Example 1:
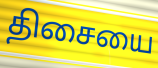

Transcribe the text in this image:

திசையை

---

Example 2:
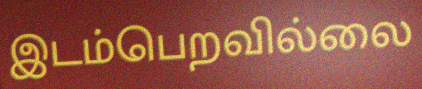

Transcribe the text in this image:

இடம்பெறவில்லை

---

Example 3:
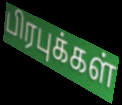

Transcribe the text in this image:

பிரபுக்கள்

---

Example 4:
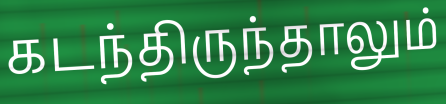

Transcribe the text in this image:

கடந்திருந்தாலும்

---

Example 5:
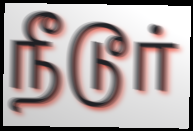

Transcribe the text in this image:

நீடூர்